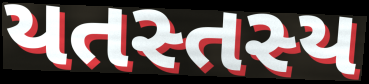
યતસ્તસ્ય